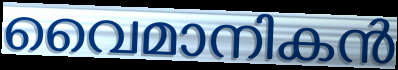
വൈമാനികൻ